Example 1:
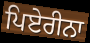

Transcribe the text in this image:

ਪਿਏਰੀਨਾ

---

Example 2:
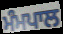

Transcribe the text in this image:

ਮੰਮਪਾਲ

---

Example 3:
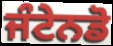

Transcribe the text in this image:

ਜੰਟੇਨਡੋ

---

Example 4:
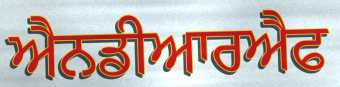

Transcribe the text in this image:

ਐਨਡੀਆਰਐਫ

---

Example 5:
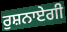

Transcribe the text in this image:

ਰੁਸ਼ਨਾਏਗੀ